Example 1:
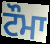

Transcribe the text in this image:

ਟੌਮਾ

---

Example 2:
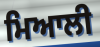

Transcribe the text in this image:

ਮਿਆਲੀ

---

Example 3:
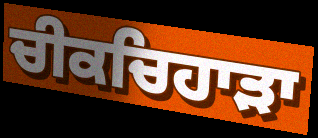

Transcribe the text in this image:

ਚੀਕਚਿਹਾੜਾ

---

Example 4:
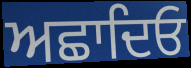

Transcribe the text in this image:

ਅਛਾਦਿਓ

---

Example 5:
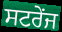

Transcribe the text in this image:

ਸਟਰੇਂਜ